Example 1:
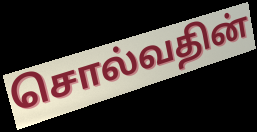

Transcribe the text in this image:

சொல்வதின்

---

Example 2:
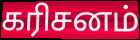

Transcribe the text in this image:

கரிசனம்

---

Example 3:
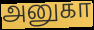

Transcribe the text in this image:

அனுகா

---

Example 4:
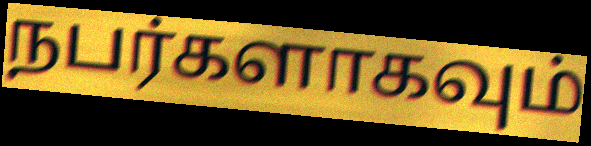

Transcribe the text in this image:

நபர்களாகவும்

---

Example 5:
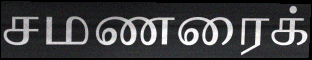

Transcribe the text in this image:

சமணரைக்